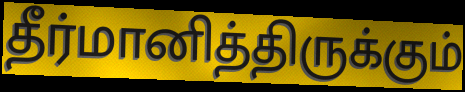
தீர்மானித்திருக்கும்